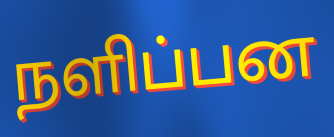
நளிப்பன